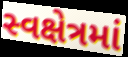
સ્વક્ષેત્રમાં